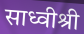
साध्वीश्री